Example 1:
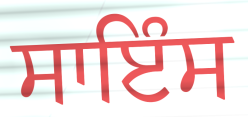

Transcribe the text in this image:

ਸਾਇੰਸ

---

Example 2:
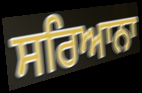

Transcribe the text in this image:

ਸਰਿਆਨਾ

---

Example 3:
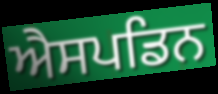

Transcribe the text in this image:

ਐਸਪਡਿਨ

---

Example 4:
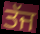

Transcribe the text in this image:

ਤੱਜ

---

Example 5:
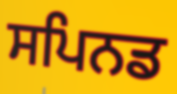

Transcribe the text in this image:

ਸਪਿਨਡ